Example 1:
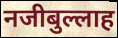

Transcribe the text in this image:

नजीबुल्लाह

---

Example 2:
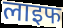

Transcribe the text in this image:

लाइफ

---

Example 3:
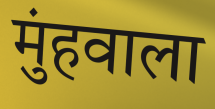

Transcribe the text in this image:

मुंहवाला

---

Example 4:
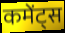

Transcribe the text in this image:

कमेंट्स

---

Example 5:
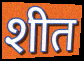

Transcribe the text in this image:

शीत